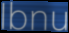
Ibnu